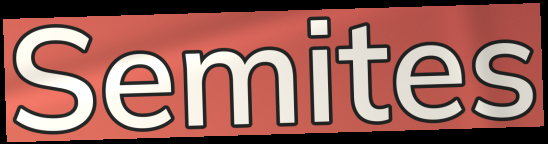
Semites